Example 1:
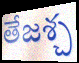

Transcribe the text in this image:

తేజశ్చ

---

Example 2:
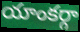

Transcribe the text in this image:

యాంకర్గా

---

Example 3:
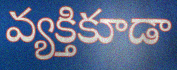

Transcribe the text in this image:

వ్యక్తికూడా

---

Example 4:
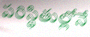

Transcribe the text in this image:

పరిస్థితుల్లోనే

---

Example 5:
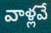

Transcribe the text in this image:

వాళ్లవే